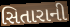
સિતારાની